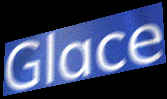
Glace